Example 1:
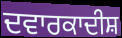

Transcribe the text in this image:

ਦਵਾਰਕਾਦੀਸ਼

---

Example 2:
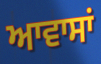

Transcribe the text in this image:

ਆਵਾਸਾਂ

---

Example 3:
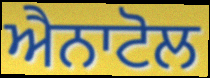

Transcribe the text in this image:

ਐਨਾਟੋਲ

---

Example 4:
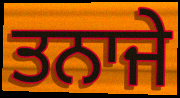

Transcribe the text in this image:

ਤਨਾਜੇ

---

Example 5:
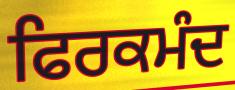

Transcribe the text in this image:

ਫਿਰਕਮੰਦ